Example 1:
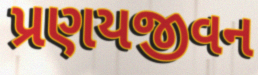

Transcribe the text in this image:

પ્રણયજીવન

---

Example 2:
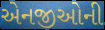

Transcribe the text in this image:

એનજીઓની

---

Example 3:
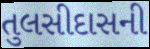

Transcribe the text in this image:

તુલસીદાસની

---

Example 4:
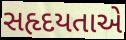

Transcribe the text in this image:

સહૃદયતાએ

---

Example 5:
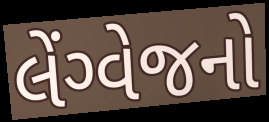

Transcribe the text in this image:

લેંગ્વેજનો